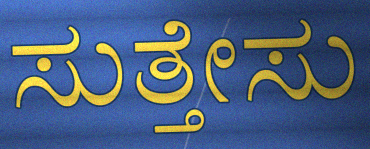
ಸುತ್ತೇಸು